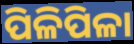
ପିଳିପିଳା